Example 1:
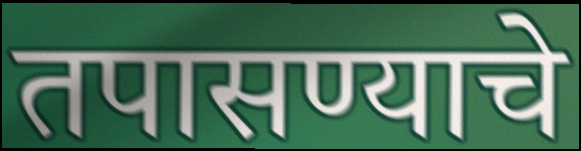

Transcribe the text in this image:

तपासण्याचे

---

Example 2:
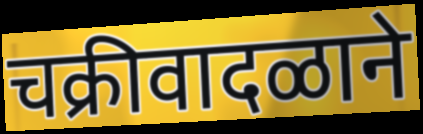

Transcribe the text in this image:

चक्रीवादळाने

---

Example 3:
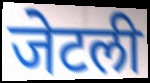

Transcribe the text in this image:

जेटली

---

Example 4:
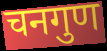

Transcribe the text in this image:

चनगुण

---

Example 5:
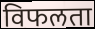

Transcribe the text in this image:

विफलता